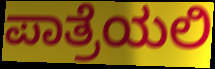
ಪಾತ್ರೆಯಲಿ